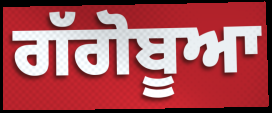
ਗੱਗੋਬੂਆ